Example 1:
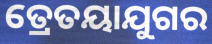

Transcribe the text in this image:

ତ୍ରେତୟାଯୁଗର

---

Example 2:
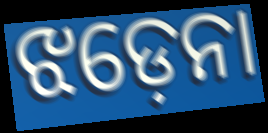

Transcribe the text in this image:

ଝଡ଼େନା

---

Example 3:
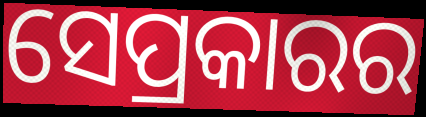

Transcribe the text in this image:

ସେପ୍ରକାରର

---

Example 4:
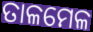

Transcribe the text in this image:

ତାଳମେଳ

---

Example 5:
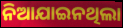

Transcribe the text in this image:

ନିଆଯାଇନଥିଲା